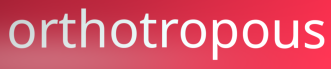
orthotropous